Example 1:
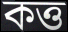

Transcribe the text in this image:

কত্ত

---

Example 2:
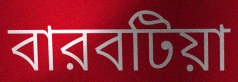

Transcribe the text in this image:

বারবটিয়া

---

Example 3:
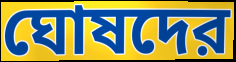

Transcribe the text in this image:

ঘোষদের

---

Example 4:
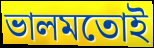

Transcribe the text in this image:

ভালমতোই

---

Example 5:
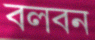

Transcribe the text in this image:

বলবন